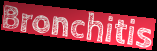
Bronchitis